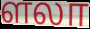
ளலா